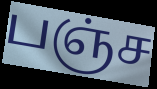
பஞ்ச